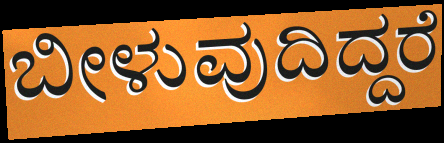
ಬೀಳುವುದಿದ್ದರೆ